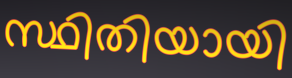
സ്ഥിതിയായി